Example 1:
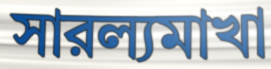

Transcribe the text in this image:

সারল্যমাখা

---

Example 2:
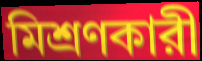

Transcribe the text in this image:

মিশ্রণকারী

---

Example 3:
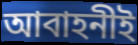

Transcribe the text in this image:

আবাহনীই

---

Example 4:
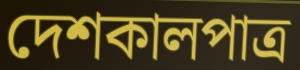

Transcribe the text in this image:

দেশকালপাত্র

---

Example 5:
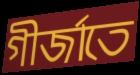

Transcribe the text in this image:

গীর্জাতে